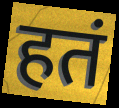
हतं